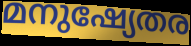
മനുഷ്യേതര